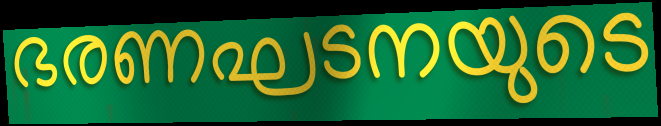
ഭരണഘടനയുടെ